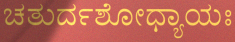
ಚತುರ್ದಶೋಧ್ಯಾಯಃ